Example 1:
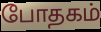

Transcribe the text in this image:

போதகம்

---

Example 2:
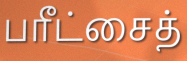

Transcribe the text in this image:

பரீட்சைத்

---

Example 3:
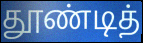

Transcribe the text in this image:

தூண்டித்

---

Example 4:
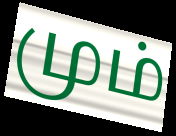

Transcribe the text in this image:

மும்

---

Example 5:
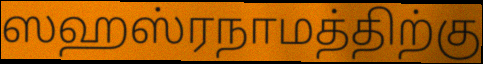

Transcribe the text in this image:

ஸஹஸ்ரநாமத்திற்கு